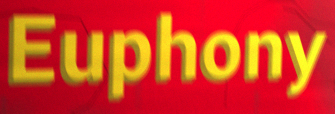
Euphony